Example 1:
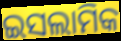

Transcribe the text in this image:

ଇସଲାମିକ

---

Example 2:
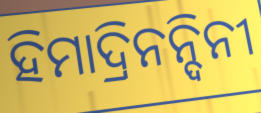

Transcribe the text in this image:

ହିମାଦ୍ରିନନ୍ଦିନୀ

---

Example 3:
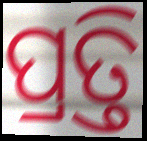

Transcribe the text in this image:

ପ୍ରତ୍ତି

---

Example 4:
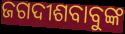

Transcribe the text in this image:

ଜଗଦୀଶବାବୁଙ୍କ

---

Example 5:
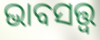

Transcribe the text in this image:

ଭାବସତ୍ତ୍ୱ